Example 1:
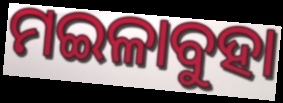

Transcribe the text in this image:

ମଇଳାବୁହା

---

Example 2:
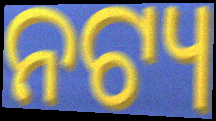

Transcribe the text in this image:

ନଟ୍ୟ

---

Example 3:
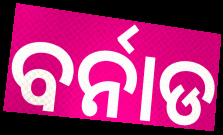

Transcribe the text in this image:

ବର୍ନାଡ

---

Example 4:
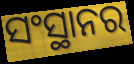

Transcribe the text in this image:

ସଂସ୍ଥାନର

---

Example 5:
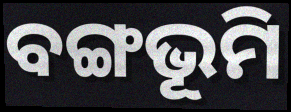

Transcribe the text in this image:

ବଙ୍ଗଭୂମି